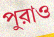
পুরাও